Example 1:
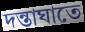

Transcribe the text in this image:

দন্তাঘাতে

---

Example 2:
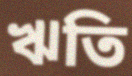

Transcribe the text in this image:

ঋতি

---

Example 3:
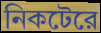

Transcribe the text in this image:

নিকটেরে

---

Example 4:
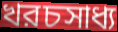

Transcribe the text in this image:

খরচসাধ্য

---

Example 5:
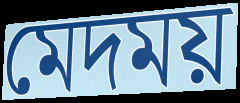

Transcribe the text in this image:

মেদময়